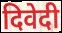
दिवेदी